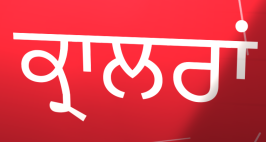
ਕ੍ਰਾਲਰਾਂ